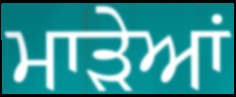
ਮਾੜੇਆਂ